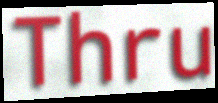
Thru